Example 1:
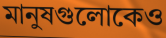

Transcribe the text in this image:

মানুষগুলোকেও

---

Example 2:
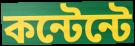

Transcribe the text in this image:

কন্টেন্টে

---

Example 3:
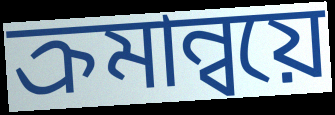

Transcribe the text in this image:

ক্রমান্বয়ে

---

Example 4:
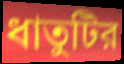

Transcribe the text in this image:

ধাতুটির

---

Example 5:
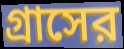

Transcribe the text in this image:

গ্রাসের